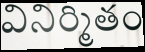
వినిర్మితం